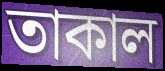
তাকাল